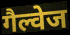
गैल्वेज